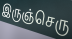
இருஞ்செரு